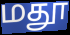
மதூ